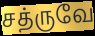
சத்ருவே